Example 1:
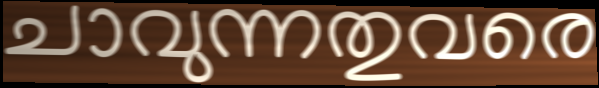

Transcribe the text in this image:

ചാവുന്നതുവരെ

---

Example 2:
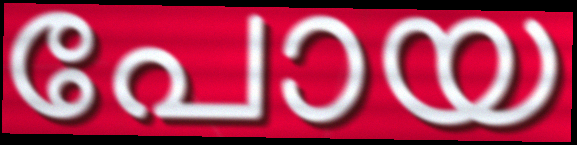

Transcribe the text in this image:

പോയ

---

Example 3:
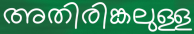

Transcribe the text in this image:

അതിരിങ്കലുള്ള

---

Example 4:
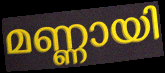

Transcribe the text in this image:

മണ്ണായി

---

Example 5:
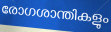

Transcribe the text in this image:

രോഗശാന്തികളും